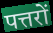
पत्तरों